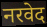
नरवेद